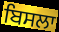
ਬਿਸਲਾ